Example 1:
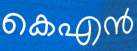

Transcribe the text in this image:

കെഎൻ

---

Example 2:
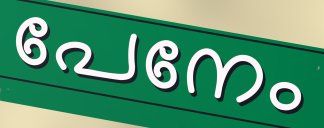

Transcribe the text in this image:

പേനേം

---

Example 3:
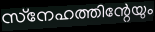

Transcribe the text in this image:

സ്‌നേഹത്തിന്റേയും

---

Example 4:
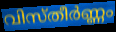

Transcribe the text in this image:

വിസ്തീർണ്ണം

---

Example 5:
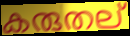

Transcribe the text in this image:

കരുതല്